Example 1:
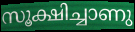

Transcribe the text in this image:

സൂക്ഷിച്ചാണു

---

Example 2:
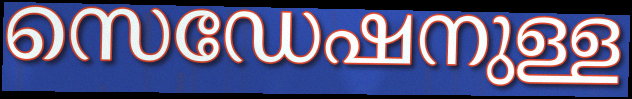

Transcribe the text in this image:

സെഡേഷനുള്ള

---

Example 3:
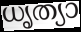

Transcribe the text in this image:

ധൃത്യാ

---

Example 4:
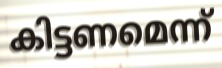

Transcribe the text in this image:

കിട്ടണമെന്ന്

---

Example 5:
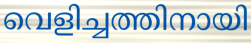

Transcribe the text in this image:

വെളിച്ചത്തിനായി